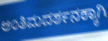
ಅಂತಿಮದರ್ಶನಕ್ಕಾಗಿ